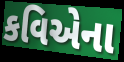
કવિએના